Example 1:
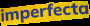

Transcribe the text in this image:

imperfecta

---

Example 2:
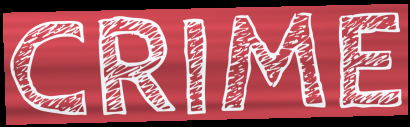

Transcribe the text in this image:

CRIME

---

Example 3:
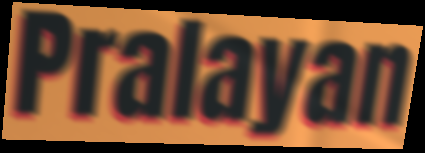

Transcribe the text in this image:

Pralayan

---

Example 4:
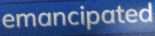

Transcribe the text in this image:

emancipated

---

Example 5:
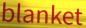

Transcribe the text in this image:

blanket